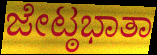
ಜೇಟ್ಠಭಾತಾ